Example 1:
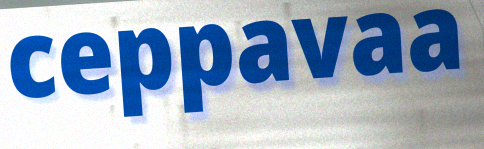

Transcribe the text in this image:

ceppavaa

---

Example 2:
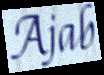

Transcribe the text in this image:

Ajab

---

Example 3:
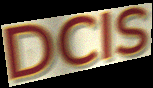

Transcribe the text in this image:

DCIS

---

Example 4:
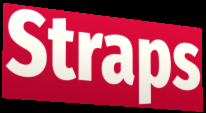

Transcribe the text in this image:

Straps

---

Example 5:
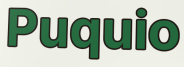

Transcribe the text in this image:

Puquio